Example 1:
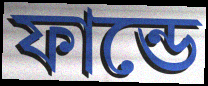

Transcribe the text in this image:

ফান্ডে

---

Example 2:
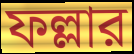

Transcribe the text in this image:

ফল্লার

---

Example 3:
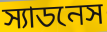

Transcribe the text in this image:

স্যাডনেস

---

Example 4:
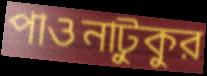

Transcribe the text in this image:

পাওনাটুকুর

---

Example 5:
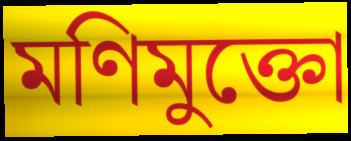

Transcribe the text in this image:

মণিমুক্তো